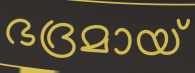
ഭദ്രമായ്